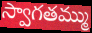
స్వాగతమ్ము